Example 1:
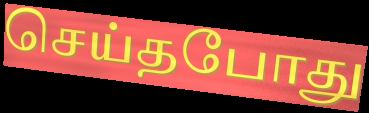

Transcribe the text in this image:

செய்தபோது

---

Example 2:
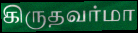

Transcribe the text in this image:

கிருதவர்மா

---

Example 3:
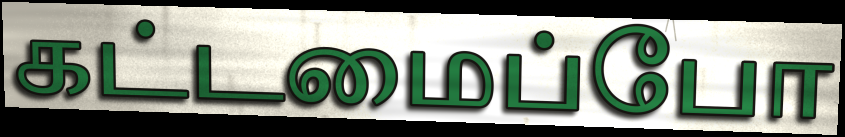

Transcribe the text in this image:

கட்டமைப்போ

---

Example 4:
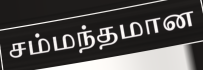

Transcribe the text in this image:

சம்மந்தமான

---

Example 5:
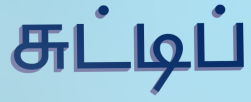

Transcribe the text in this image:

சுட்டிப்